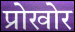
प्रोखोर